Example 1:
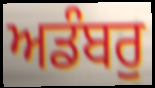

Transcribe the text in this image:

ਅਡੰਬਰੁ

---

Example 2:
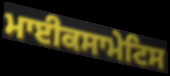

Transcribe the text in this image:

ਮਾਈਕਸਾਮੇਟਿਸ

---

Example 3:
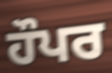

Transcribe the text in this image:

ਹੌਪਰ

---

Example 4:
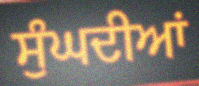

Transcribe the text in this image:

ਸੁੰਘਦੀਆਂ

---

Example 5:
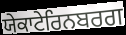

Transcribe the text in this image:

ਯੇਕਾਟੇਰਿਨਬਰਗ